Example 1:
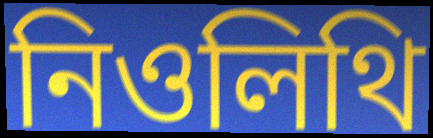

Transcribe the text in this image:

নিওলিথি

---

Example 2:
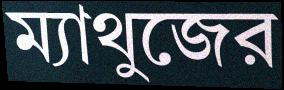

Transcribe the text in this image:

ম্যাথুজের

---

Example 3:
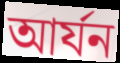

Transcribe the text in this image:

আর্যন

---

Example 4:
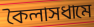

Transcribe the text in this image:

কৈলাসধামে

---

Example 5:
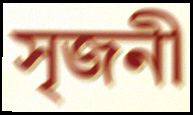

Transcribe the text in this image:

সৃজনী